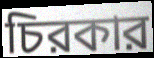
চিরকার